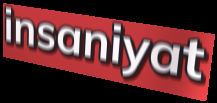
insaniyat